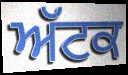
ਅੱਟਕ